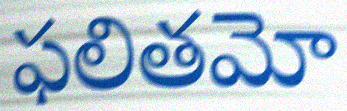
ఫలితమో